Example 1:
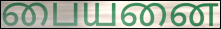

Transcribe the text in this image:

பையனை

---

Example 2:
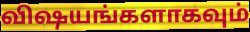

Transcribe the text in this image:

விஷயங்களாகவும்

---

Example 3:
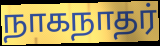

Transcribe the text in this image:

நாகநாதர்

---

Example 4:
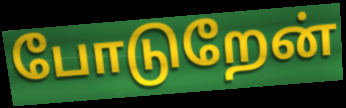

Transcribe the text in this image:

போடுறேன்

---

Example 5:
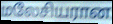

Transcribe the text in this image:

மலேசியரான